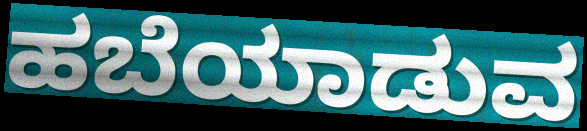
ಹಬೆಯಾಡುವ